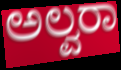
ಅಲ್ವರಾ